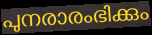
പുനരാരംഭിക്കും